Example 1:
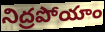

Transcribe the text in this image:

నిద్రపోయాం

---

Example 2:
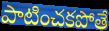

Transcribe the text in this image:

పాటించకపోతే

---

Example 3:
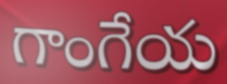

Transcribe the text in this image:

గాంగేయ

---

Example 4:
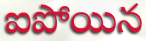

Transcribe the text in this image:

ఐపోయిన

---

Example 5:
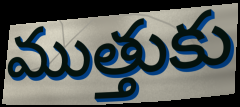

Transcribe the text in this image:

ముత్తుకు